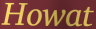
Howat